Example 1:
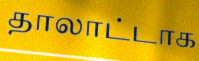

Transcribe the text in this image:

தாலாட்டாக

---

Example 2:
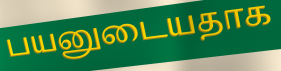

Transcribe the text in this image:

பயனுடையதாக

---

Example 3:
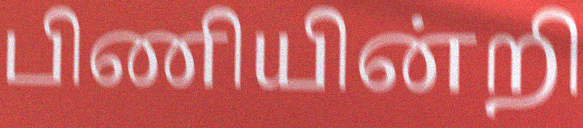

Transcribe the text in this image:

பிணியின்றி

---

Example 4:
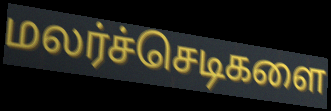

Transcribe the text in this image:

மலர்ச்செடிகளை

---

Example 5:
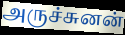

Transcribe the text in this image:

அருச்சுனன்